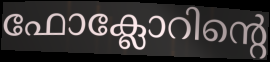
ഫോക്ലോറിന്റെ